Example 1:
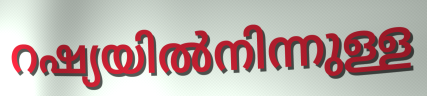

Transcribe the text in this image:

റഷ്യയിൽനിന്നുള്ള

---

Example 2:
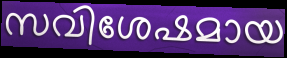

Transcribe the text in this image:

സവിശേഷമായ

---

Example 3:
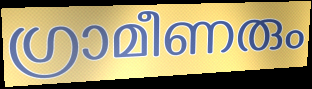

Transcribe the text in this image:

ഗ്രാമീണരും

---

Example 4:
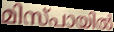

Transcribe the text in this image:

മിസ്പായിൽ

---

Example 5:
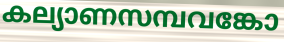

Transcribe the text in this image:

കല്യാണസമ്പവങ്കോ